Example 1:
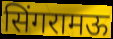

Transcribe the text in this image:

सिंगरामऊ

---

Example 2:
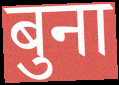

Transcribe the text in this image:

बुना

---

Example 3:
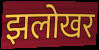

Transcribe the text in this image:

झलोखर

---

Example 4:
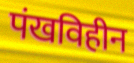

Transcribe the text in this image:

पंखविहीन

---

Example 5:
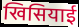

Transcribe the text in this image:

खिसियाई